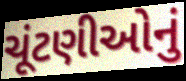
ચૂંટણીઓનું